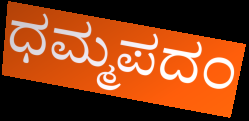
ಧಮ್ಮಪದಂ